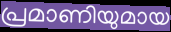
പ്രമാണിയുമായ